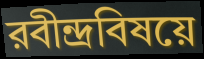
রবীন্দ্রবিষয়ে